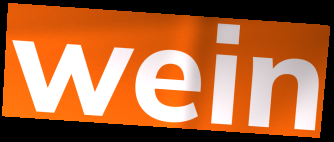
wein